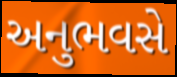
અનુભવસે